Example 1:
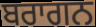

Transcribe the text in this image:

ਬਰਾਗਨ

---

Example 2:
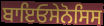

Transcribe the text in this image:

ਬਾਇਓਸੇਨੋਸਿਸ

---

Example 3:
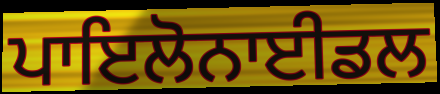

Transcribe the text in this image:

ਪਾਇਲੋਨਾਈਡਲ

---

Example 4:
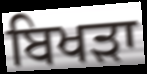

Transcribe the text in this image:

ਬਿਖੜਾ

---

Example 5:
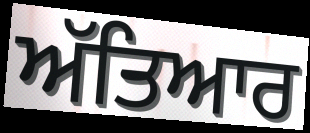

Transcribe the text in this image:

ਅੱਤਿਆਰ